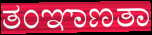
ತಂಞಾಣತಾ